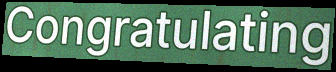
Congratulating